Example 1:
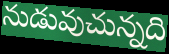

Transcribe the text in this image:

నుడువుచున్నది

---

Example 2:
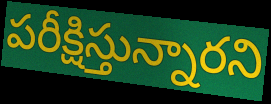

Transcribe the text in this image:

పరీక్షిస్తున్నారని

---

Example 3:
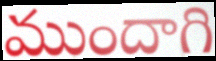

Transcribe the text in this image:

ముందాగి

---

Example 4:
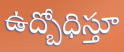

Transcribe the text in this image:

ఉద్బోధిస్తూ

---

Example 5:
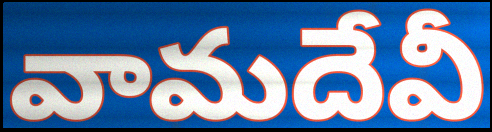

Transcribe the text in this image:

వామదేవీ